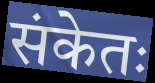
संकेतः